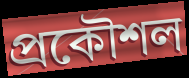
প্ৰকৌশল